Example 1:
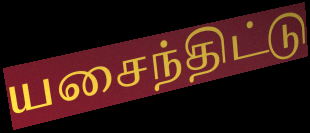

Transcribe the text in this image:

யசைந்திட்டு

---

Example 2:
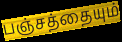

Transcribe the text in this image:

பஞ்சத்தையும்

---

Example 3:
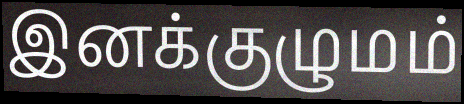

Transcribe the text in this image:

இனக்குழுமம்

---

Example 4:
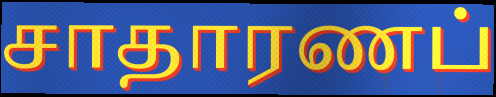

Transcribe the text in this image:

சாதாரணப்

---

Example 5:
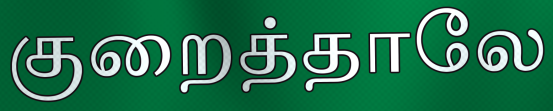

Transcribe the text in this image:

குறைத்தாலே